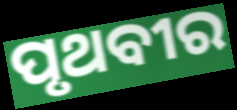
ପୃଥବୀର